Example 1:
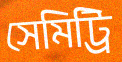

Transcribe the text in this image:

সেমিট্রি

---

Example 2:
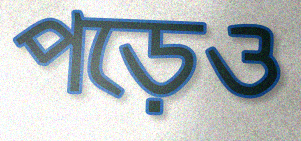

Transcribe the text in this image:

পড়েও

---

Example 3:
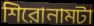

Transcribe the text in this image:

শিরোনামটা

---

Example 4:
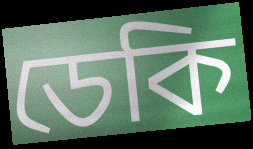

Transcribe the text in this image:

ডেকি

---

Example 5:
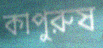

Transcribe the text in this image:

কাপুরুষ